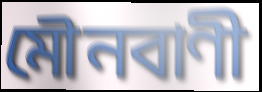
মৌনবাণী